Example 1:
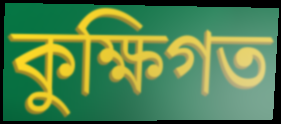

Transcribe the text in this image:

কুক্ষিগত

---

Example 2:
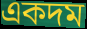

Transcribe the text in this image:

একদম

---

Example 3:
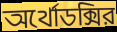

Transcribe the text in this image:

অর্থোডক্সির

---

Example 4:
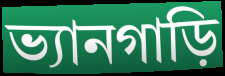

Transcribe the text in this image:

ভ্যানগাড়ি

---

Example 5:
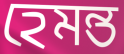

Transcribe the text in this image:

হেমন্ত